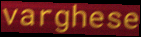
varghese